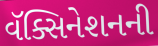
વૅક્સિનેશનની